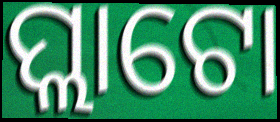
ପ୍ଲାଟୋ